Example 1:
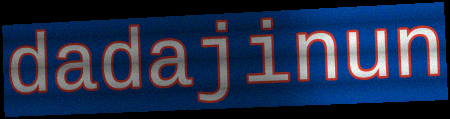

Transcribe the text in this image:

dadajinun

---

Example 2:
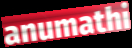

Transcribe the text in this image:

anumathi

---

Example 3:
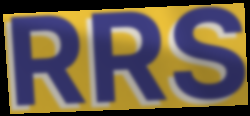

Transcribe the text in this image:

RRS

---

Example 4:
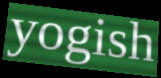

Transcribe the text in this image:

yogish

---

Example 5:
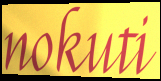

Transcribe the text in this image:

nokuti